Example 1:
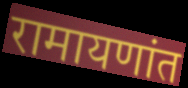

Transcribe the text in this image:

रामायणांत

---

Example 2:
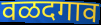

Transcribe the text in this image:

वळदगाव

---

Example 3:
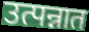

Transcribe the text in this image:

उत्पन्नात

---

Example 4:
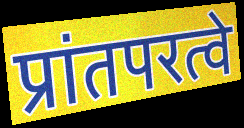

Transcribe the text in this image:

प्रांतपरत्वे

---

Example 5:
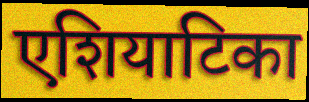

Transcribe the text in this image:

एशियाटिका